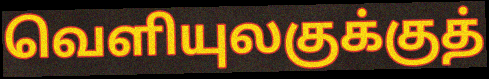
வெளியுலகுக்குத்